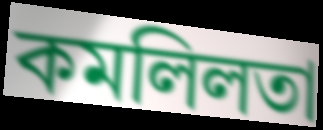
কমলিলতা